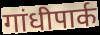
गांधीपार्क